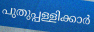
പുതുപ്പള്ളിക്കാർ